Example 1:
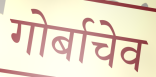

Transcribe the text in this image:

गोर्बाचेव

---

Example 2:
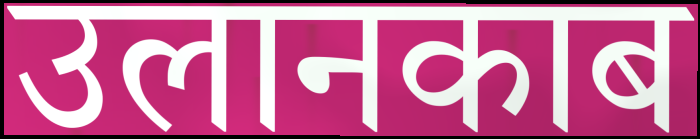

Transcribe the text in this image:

उलानकाब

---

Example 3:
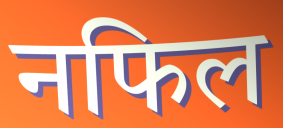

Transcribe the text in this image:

नफिल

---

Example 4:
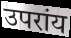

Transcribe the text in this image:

उपरांय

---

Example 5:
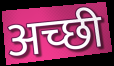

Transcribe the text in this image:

अच्‍छी